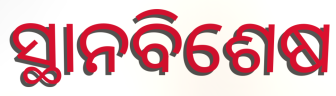
ସ୍ଥାନବିଶେଷ